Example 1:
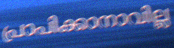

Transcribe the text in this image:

പ്രാപിക്കാനാവില്ല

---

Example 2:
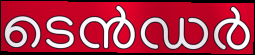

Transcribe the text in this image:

ടെൻഡർ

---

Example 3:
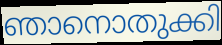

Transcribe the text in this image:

ഞാനൊതുക്കി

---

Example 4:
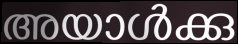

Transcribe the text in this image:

അയാൾക്കു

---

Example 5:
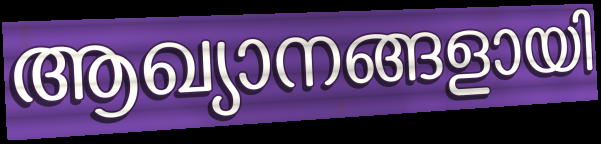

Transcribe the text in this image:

ആഖ്യാനങ്ങളായി